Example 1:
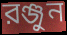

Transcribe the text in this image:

রঞ্জুন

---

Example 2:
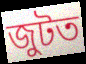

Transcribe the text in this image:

জুটত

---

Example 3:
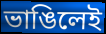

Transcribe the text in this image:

ভাঙিলেই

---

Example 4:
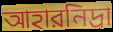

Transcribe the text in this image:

আহারনিদ্রা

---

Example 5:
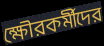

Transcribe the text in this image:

ক্ষৌরকর্মীদের